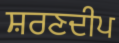
ਸ਼ਰਣਦੀਪ